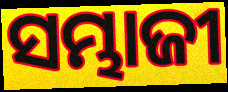
ସମ୍ଭାଜୀ